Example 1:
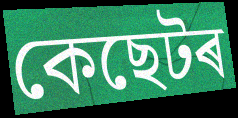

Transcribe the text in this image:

কেছেটৰ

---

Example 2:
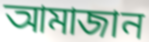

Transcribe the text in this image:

আমাজান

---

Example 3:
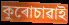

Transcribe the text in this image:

কুৰোচাৱাই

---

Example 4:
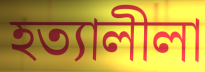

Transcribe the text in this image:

হত্যালীলা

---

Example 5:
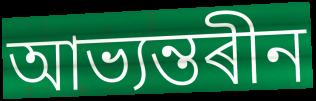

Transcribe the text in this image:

আভ্যন্তৰীন